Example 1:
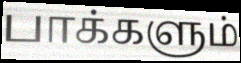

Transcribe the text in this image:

பாக்களும்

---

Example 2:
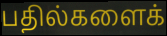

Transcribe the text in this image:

பதில்களைக்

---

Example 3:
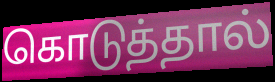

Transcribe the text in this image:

கொடுத்தால்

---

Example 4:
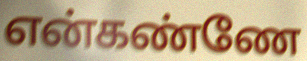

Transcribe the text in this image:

என்கண்ணே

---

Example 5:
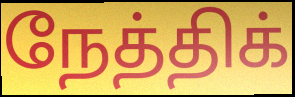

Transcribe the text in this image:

நேத்திக்